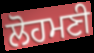
ਲੋਹਮਣੀ